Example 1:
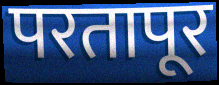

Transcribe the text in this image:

परतापूर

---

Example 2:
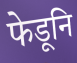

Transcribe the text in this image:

फेडूनि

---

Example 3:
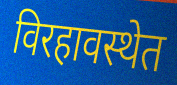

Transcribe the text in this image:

विरहावस्थेत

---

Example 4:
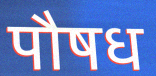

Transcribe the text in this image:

पौषध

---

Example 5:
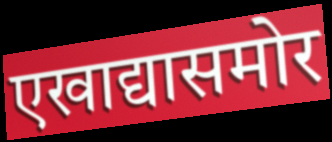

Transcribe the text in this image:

एखाद्यासमोर